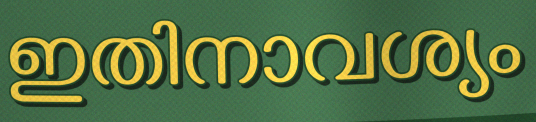
ഇതിനാവശ്യം